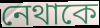
নেথাকে